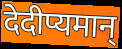
देदीप्यमान्